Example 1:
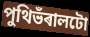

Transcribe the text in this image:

পুথিভঁৰালটো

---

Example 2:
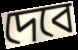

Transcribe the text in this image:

দেবে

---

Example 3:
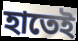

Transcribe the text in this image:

হাতেই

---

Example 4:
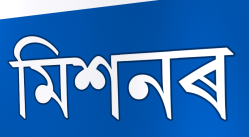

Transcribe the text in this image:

মিশনৰ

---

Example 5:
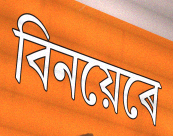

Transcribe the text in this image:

বিনয়েৰে